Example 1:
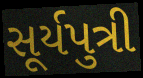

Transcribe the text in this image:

સૂર્યપુત્રી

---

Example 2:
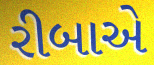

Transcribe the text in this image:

રીબાએ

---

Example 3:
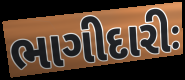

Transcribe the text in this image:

ભાગીદારીઃ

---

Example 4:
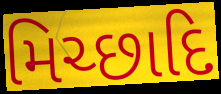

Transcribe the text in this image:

મિચ્છાદિ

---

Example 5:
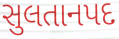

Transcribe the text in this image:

સુલતાનપદ